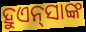
ହୁଏନ୍‍ସାଙ୍କ